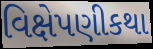
વિક્ષેપણીકથા